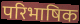
परिभाषिक